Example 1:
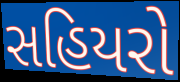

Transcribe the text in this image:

સહિયરો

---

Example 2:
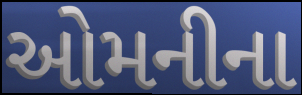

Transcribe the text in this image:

ઓમનીના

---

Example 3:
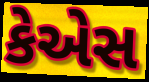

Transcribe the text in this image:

કેએસ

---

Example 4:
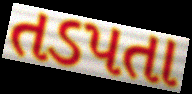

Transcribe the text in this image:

તડપતા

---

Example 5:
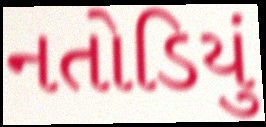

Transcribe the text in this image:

નતોડિયું